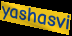
yashasvi